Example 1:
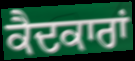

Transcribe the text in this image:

ਕੈਦਕਾਰਾਂ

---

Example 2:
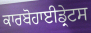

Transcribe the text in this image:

ਕਾਰਬੋਹਾਈਡ੍ਰੇਟਸ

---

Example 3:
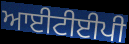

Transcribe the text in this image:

ਆਈਟੀਈਪੀ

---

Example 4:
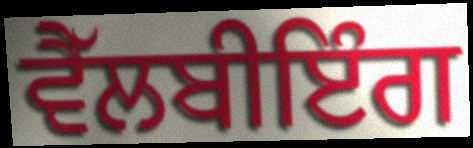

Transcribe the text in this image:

ਵੈੱਲਬੀਇੰਗ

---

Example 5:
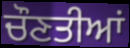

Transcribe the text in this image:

ਚੌਣਤੀਆਂ